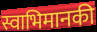
स्वाभिमानकी